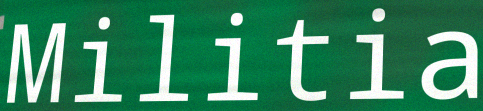
Militia